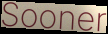
Sooner